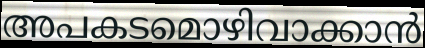
അപകടമൊഴിവാക്കാൻ